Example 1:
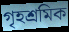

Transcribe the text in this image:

গৃহশ্রমিক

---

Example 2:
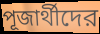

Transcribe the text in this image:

পূজার্থীদের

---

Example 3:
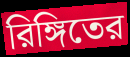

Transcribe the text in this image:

রিঙ্গিতের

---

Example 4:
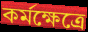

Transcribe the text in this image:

কর্মক্ষেত্রে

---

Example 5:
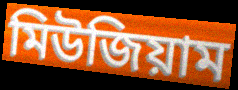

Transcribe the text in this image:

মিউজিয়াম